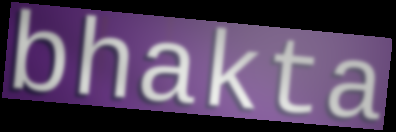
bhakta